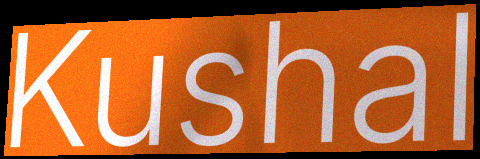
Kushal